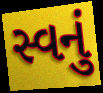
સ્વનું